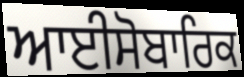
ਆਈਸੋਬਾਰਿਕ